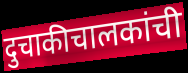
दुचाकीचालकांची